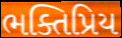
ભક્તિપ્રિય